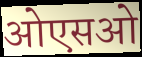
ओएसओ